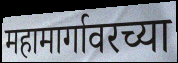
महामार्गावरच्या